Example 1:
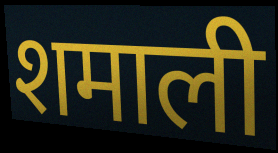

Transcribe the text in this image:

शमाली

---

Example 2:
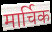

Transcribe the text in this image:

मार्चिक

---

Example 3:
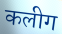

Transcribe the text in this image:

कलीग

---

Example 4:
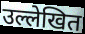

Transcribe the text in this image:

उल्लेखित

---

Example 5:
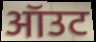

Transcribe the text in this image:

ऑउट